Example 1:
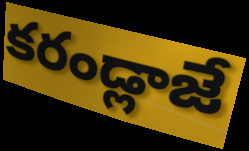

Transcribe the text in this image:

కరండ్లాజే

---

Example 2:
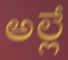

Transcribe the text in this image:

అల్లే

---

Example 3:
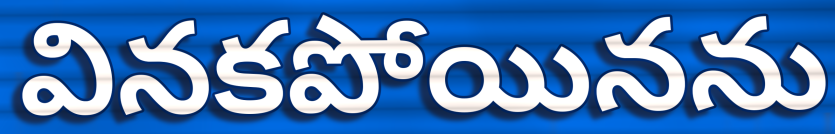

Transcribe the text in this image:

వినకపోయినను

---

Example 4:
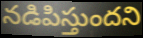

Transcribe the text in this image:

నడిపిస్తుందని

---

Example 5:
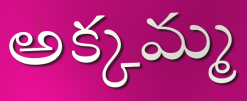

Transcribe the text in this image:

అక్కమ్మ